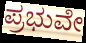
ಪ್ರಭುವೇ